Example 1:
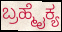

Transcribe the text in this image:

ಬ್ರಹ್ಮೈಕ್ಯ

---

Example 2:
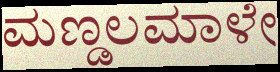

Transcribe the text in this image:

ಮಣ್ಡಲಮಾಳೇ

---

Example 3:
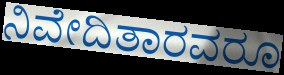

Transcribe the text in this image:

ನಿವೇದಿತಾರವರೂ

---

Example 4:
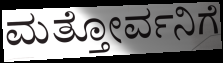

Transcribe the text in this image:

ಮತ್ತೋರ್ವನಿಗೆ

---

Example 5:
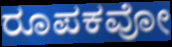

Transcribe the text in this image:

ರೂಪಕವೋ